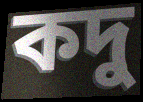
কদু